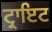
ਟ੍ਰਾਇਟ